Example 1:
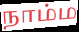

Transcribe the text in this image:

நாம்ம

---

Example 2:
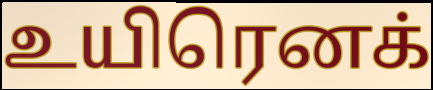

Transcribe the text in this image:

உயிரெனக்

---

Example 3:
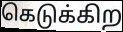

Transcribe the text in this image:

கெடுக்கிற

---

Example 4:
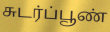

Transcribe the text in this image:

சுடர்ப்பூண்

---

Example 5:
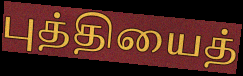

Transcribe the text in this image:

புத்தியைத்